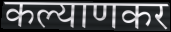
कल्याणकर